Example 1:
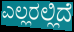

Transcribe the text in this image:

ಎಲ್ಲರಲ್ಲಿದೆ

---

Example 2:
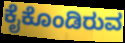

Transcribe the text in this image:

ಕೈಕೊಂಡಿರುವ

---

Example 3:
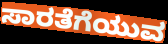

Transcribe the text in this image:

ಸಾರತೆಗೆಯುವ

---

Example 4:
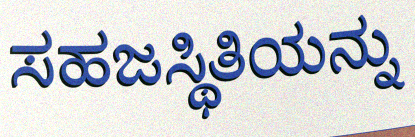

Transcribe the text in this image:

ಸಹಜಸ್ಥಿತಿಯನ್ನು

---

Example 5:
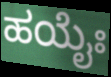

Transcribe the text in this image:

ಹಯೈಃ